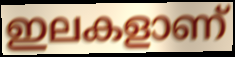
ഇലകളാണ്